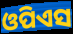
ଓପିଏସ